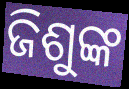
ଜିଶୁଙ୍କ